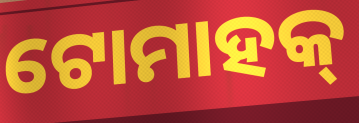
ଟୋମାହକ୍